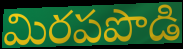
మిరపపొడి